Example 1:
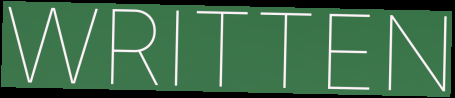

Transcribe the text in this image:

WRITTEN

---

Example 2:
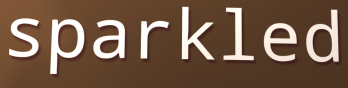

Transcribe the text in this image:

sparkled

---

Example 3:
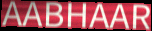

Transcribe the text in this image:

AABHAAR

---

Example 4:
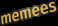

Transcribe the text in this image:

memees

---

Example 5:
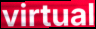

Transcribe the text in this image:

virtual